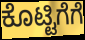
ಕೊಟ್ಟಿಗೆಗೆ